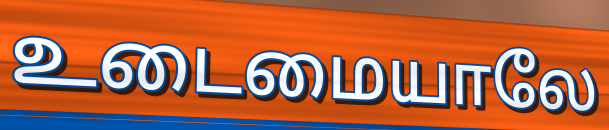
உடைமையாலே